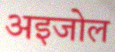
अइजोल